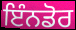
ਇੰਨਡੋਰ